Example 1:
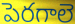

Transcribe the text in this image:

పెరగాలె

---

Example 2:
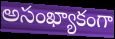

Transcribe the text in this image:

అసంఖ్యాకంగా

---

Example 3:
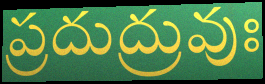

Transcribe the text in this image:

ప్రదుద్రువుః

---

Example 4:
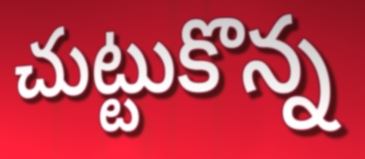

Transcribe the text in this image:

చుట్టుకొన్న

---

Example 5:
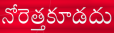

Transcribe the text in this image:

నోరెత్తకూడదు